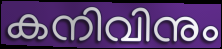
കനിവിനും